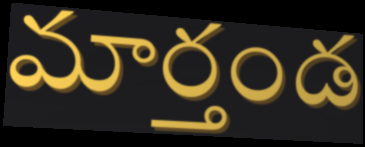
మార్తండ